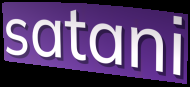
satani